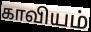
காவியம்